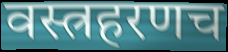
वस्त्रहरणच